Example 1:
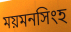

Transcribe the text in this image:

ময়মনসিংহ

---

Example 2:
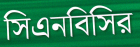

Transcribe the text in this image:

সিএনবিসির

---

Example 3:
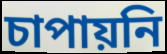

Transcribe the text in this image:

চাপায়নি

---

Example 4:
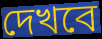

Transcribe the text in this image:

দেখবে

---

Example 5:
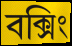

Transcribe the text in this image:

বক্সিং